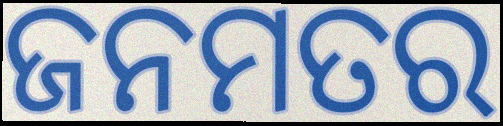
ଜନମତର